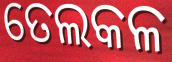
ତେଲକଳ